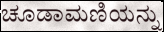
ಚೂಡಾಮಣಿಯನ್ನು